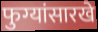
फुग्यांसारखे